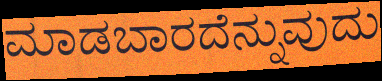
ಮಾಡಬಾರದೆನ್ನುವುದು